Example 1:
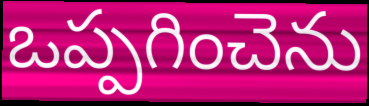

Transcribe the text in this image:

ఒప్పగించెను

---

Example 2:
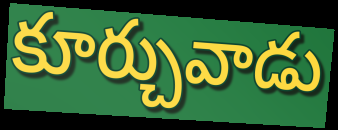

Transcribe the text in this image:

కూర్చువాడు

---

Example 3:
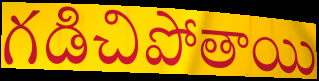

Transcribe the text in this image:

గడిచిపోతాయి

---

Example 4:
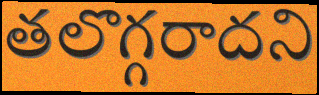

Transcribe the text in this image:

తలొగ్గరాదని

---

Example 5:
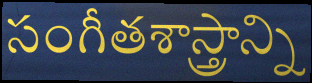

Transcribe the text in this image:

సంగీతశాస్త్రాన్ని